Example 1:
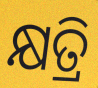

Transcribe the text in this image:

କ୍ଷତ୍ରି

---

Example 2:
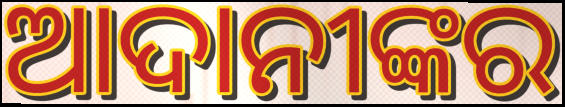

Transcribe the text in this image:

ଆଦାନୀଙ୍କର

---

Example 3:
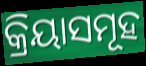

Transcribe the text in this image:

କ୍ରିୟାସମୂହ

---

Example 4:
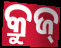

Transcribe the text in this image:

କ୍ରୁଜ୍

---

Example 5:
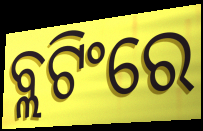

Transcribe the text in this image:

ବ୍ଲଟିଂରେ